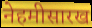
नेहमीसारख